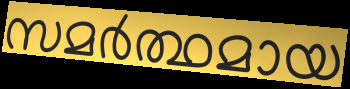
സമർത്ഥമായ